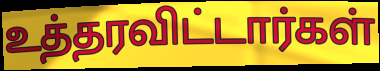
உத்தரவிட்டார்கள்